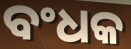
ବଂଧକ